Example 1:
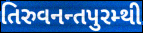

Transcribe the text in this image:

તિરુવનન્તપુરમ્થી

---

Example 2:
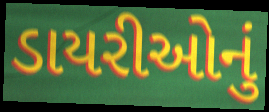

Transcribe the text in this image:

ડાયરીઓનું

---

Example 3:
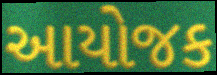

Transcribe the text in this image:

આયોજક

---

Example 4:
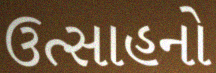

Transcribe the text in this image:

ઉત્સાહનો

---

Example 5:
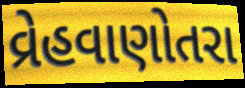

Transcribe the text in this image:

વ્રેહવાણોતરા